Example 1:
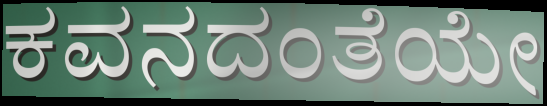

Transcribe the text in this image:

ಕವನದಂತೆಯೇ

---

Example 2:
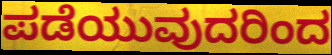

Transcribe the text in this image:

ಪಡೆಯುವುದರಿಂದ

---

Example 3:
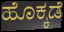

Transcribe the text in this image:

ಹೊಕ್ಕಡೆ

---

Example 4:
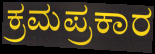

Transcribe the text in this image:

ಕ್ರಮಪ್ರಕಾರ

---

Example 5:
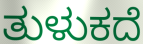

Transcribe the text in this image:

ತುಳುಕದೆ